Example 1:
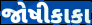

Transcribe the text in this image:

જોષીકાકા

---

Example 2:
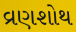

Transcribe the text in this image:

વ્રણશોથ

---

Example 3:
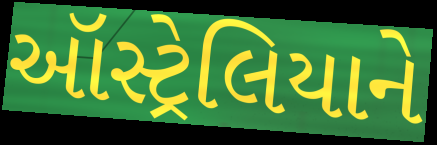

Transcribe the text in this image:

ઑસ્ટ્રેલિયાને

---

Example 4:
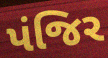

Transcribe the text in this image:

પંજિર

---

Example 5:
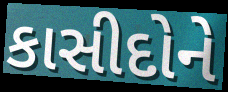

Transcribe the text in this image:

કાસીદોને